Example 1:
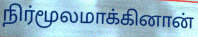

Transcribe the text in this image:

நிர்மூலமாக்கினான்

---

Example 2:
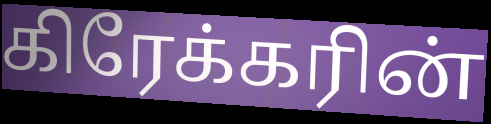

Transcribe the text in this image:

கிரேக்கரின்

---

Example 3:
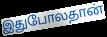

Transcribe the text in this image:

இதுபோலதான்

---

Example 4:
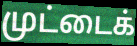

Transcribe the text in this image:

முட்டைக்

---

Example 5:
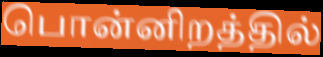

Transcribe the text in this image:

பொன்னிறத்தில்